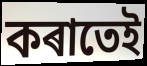
কৰাতেই